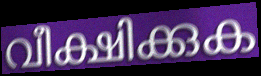
വീക്ഷിക്കുക